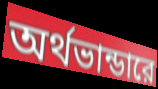
অর্থভান্ডারে